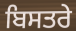
ਬਿਸਤਰੇ